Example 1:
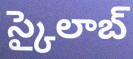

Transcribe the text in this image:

స్కైలాబ్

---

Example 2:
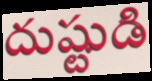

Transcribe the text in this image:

దుష్టుడి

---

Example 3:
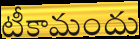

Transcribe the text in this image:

టీకామందు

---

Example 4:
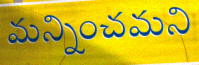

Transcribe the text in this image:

మన్నించమని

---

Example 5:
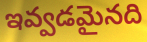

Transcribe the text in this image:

ఇవ్వడమైనది